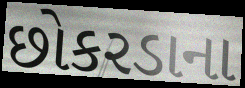
છોકરડાના